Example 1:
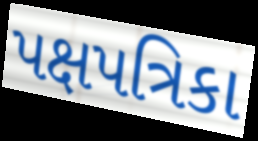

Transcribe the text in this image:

પક્ષપત્રિકા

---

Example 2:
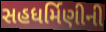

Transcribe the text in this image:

સહધર્મિણીની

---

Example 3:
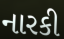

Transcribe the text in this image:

નારકી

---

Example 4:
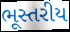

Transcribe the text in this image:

ભૂસ્તરીય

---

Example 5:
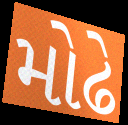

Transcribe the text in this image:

મોઢે